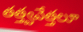
తత్త్వవేత్తలూ